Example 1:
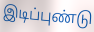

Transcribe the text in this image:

இடிப்புண்டு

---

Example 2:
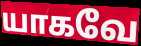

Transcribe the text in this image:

யாகவே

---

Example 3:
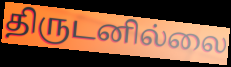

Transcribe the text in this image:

திருடனில்லை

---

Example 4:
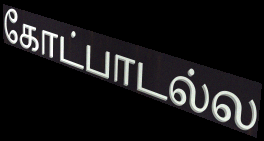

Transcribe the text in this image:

கோட்பாடல்ல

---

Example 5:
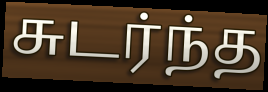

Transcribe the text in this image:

சுடர்ந்த